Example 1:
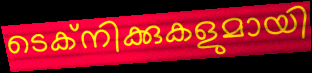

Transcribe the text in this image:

ടെക്നിക്കുകളുമായി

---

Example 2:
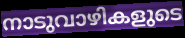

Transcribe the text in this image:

നാടുവാഴികളുടെ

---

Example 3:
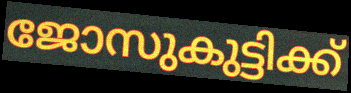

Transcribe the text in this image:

ജോസുകുട്ടിക്ക്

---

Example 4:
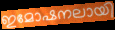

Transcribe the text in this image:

ഇമോഷനലായി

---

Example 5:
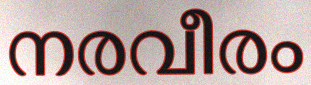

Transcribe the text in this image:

നരവീരം